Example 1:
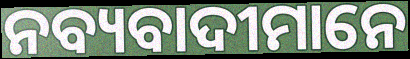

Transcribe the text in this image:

ନବ୍ୟବାଦୀମାନେ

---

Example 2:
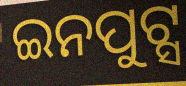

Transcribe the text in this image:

ଇନପୁଟ୍ସ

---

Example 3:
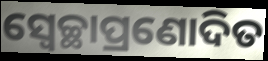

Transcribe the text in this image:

ସ୍ୱେଚ୍ଛାପ୍ରଣୋଦିତ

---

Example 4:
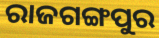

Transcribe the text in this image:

ରାଜଗଙ୍ଗପୁର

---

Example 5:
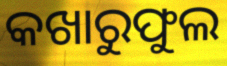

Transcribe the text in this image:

କଖାରୁଫୁଲ